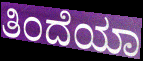
ತಿಂದೆಯಾ